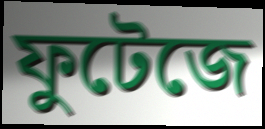
ফুটেজে